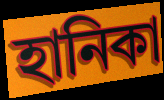
হানিকা